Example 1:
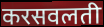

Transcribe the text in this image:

करसवलती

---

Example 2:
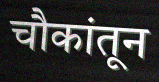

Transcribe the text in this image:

चौकांतून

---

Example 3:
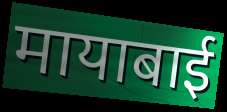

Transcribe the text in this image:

मायाबाई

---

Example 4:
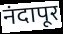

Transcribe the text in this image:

नंदापूर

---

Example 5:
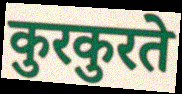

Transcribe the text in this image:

कुरकुरते